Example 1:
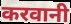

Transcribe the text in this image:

करवानी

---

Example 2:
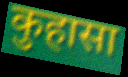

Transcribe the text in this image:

कुहासा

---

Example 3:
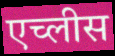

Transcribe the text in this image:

एच्लीस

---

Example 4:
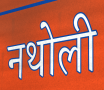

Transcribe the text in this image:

नथोली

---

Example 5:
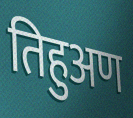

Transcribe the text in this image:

तिहुअण